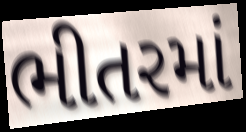
ભીતરમાં